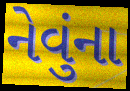
નેવુંના